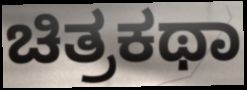
ಚಿತ್ರಕಥಾ